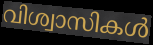
വിശ്വാസികൾ